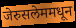
जेरुसलेममधून